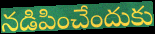
నడిపించేందుకు